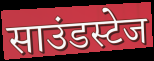
साउंडस्टेज